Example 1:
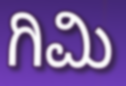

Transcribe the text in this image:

ಗಿಮಿ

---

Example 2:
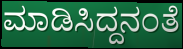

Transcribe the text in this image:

ಮಾಡಿಸಿದ್ದನಂತೆ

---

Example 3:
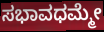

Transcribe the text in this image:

ಸಭಾವಧಮ್ಮೇ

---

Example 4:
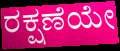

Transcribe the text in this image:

ರಕ್ಷಣೆಯೇ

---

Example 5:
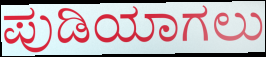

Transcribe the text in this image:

ಪುಡಿಯಾಗಲು